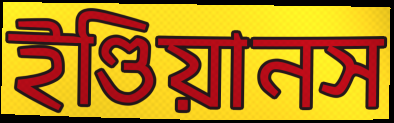
ইণ্ডিয়ানস